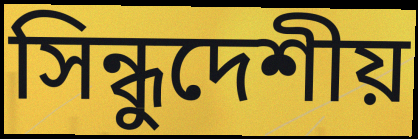
সিন্ধুদেশীয়